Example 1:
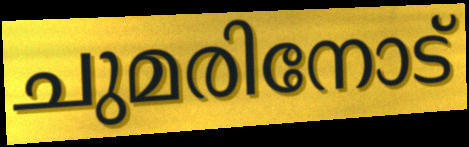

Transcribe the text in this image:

ചുമരിനോട്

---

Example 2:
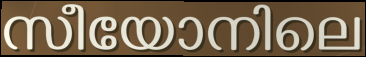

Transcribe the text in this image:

സീയോനിലെ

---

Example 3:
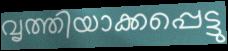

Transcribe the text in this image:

വൃത്തിയാക്കപ്പെട്ടു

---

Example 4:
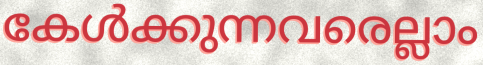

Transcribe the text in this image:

കേൾക്കുന്നവരെല്ലാം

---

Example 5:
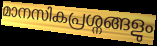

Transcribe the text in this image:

മാനസികപ്രശ്നങ്ങളും